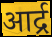
आर्द्र